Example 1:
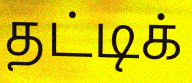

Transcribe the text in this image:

தட்டிக்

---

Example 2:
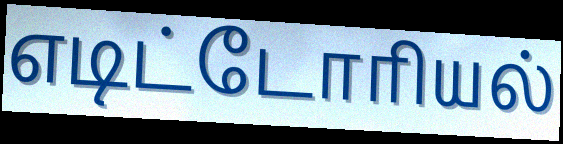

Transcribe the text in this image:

எடிட்டோரியல்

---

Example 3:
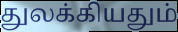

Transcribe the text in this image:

துலக்கியதும்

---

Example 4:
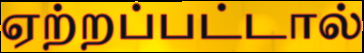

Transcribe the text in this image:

ஏற்றப்பட்டால்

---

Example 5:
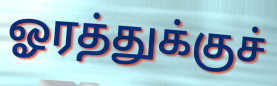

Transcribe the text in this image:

ஓரத்துக்குச்